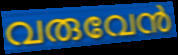
വരുവേൻ